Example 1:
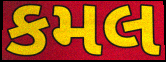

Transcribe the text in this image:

કમલ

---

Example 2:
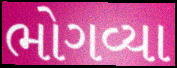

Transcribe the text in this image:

ભોગવ્યા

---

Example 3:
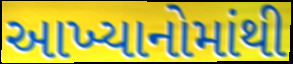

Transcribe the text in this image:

આખ્યાનોમાંથી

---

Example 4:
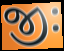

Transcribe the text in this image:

જીઃ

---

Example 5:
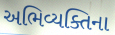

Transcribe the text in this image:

અભિવ્યક્તિના